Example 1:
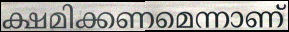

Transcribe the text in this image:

ക്ഷമിക്കണമെന്നാണ്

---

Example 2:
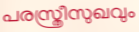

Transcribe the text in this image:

പരസ്ത്രീസുഖവും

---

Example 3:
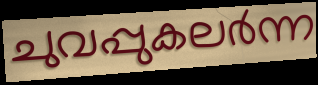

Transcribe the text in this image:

ചുവപ്പുകലർന്ന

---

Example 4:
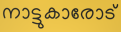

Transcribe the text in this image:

നാട്ടുകാരോട്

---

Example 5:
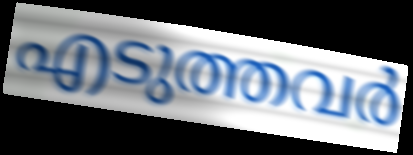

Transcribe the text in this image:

എടുത്തവർ